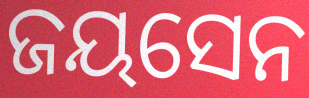
ଜୟସେନ